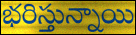
భరిస్తున్నాయి